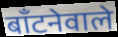
बाँटनेवाले